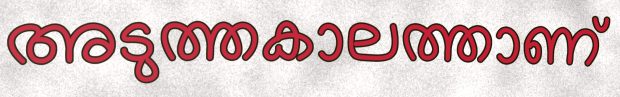
അടുത്തകാലത്താണ്